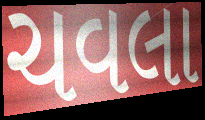
ચવલા